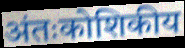
अंतःकोशिकीय